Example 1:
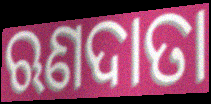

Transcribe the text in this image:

ଋଣଦାତା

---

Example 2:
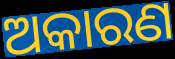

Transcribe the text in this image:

ଅକାରଣ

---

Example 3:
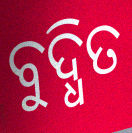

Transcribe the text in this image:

ବୁଦ୍ଧିତ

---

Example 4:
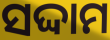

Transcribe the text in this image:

ସଦ୍ଦାମ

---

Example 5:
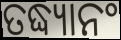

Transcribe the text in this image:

ତଦ୍ଧ୍ଯାନଂ